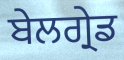
ਬੇਲਗ੍ਰੇਡ